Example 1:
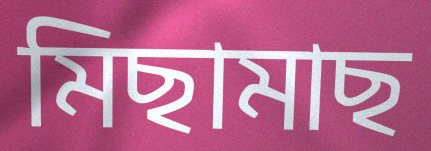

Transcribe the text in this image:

মিছামাছ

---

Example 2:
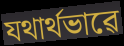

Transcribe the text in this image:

যথাৰ্থভাৱে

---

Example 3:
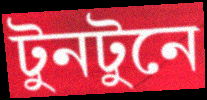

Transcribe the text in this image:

টুনটুনে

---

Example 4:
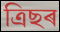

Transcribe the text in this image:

ত্ৰিছৰ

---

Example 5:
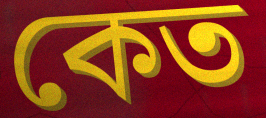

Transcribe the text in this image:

কেত